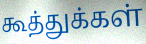
கூத்துக்கள்